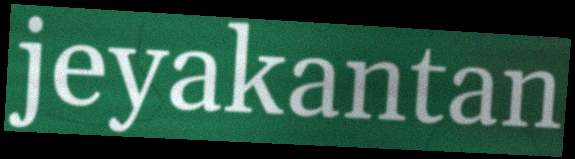
jeyakantan